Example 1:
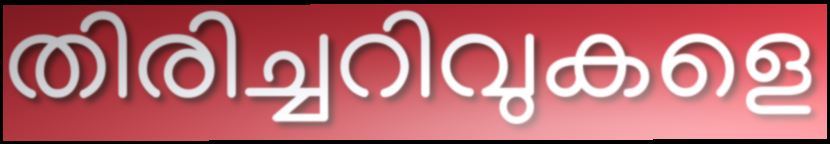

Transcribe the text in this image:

തിരിച്ചറിവുകളെ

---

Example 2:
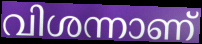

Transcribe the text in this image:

വിശന്നാണ്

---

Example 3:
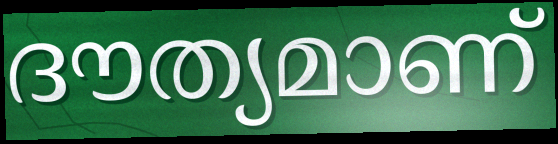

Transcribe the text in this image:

ദൗത്യമാണ്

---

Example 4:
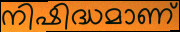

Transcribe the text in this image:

നിഷിദ്ധമാണ്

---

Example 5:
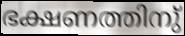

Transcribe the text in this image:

ഭക്ഷണത്തിനു്